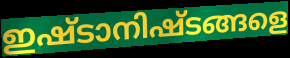
ഇഷ്ടാനിഷ്ടങ്ങളെ